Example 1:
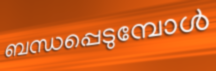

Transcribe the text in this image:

ബന്ധപ്പെടുമ്പോൾ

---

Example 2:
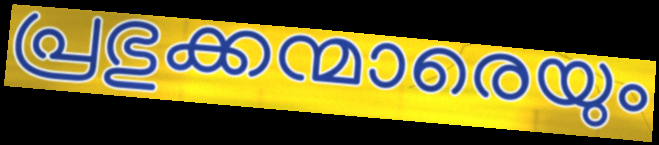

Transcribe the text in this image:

പ്രഭുക്കന്മാരെയും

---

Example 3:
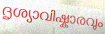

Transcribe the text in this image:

ദൃശ്യാവിഷ്കാരവും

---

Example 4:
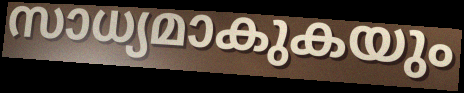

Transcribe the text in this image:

സാധ്യമാകുകയും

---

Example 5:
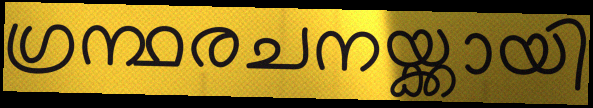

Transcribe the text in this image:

ഗ്രന്ഥരചനയ്ക്കായി